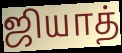
ஜியாத்